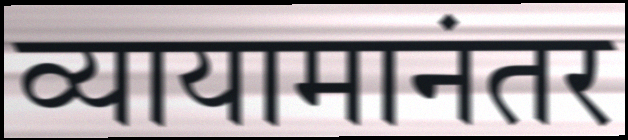
व्यायामानंतर